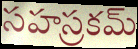
సహస్రకమ్